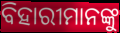
ବିହାରୀମାନଙ୍କୁ